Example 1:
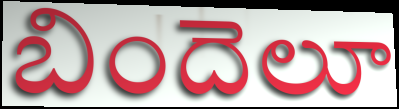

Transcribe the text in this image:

బిందెలూ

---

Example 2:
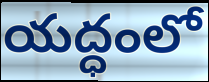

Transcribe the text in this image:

యద్ధంలో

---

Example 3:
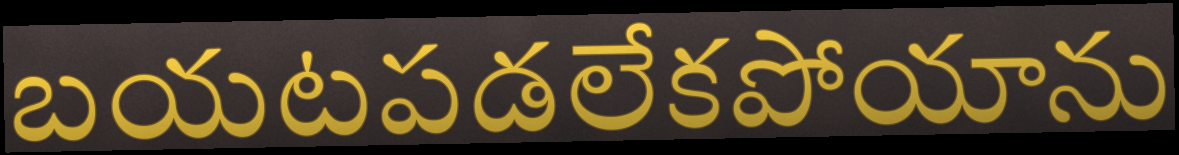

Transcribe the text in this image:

బయటపడలేకపోయాను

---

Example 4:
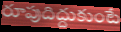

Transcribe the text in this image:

రూపుదిద్దుకుంటే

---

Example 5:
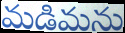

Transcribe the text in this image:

మడిమను